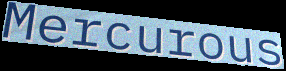
Mercurous